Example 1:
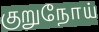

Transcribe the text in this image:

குறுநோய்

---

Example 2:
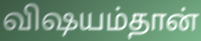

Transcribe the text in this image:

விஷயம்தான்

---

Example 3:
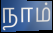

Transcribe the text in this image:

நாம்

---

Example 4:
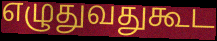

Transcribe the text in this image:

எழுதுவதுகூட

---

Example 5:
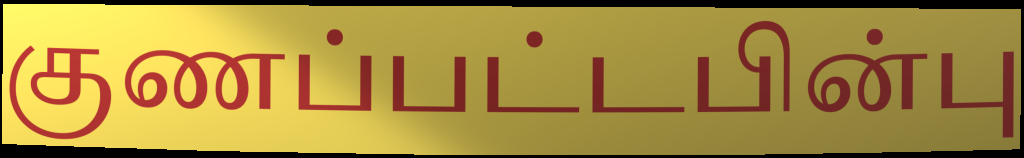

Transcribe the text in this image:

குணப்பட்டபின்பு